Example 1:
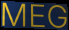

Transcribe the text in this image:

MEG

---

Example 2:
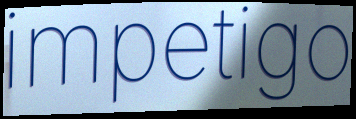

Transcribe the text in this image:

impetigo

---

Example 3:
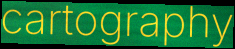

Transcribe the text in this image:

cartography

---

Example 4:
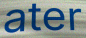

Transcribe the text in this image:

ater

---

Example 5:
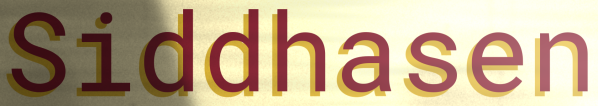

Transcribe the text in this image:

Siddhasen